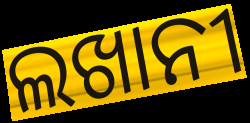
ଲଖାନୀ